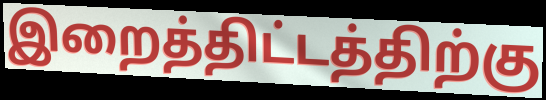
இறைத்திட்டத்திற்கு